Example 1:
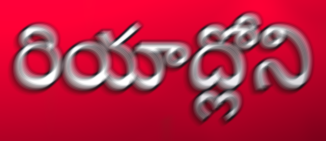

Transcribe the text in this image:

రియాద్లోని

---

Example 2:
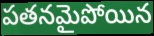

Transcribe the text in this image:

పతనమైపోయిన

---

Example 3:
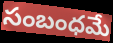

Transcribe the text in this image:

సంబంధమే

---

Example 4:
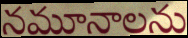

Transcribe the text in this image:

నమూనాలను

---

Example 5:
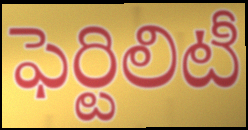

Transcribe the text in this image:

ఫెర్టిలిటీ